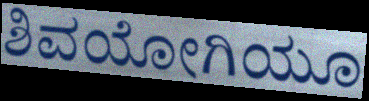
ಶಿವಯೋಗಿಯೂ